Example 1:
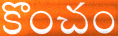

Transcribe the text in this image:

కొంచం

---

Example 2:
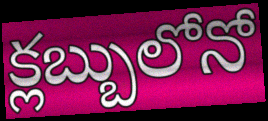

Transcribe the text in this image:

క్లబ్బులోనో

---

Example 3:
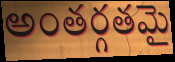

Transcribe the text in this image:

అంతర్గతమై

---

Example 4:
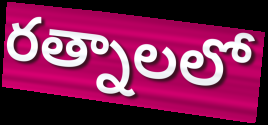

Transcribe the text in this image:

రత్నాలలో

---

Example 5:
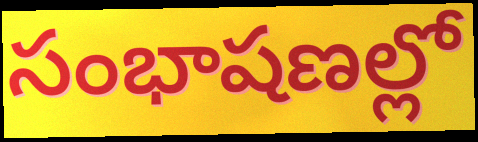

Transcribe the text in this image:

సంభాషణల్లో